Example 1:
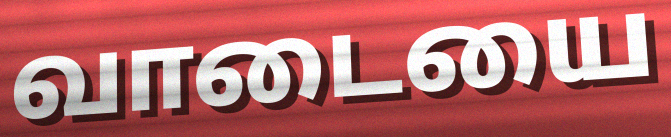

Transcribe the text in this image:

வாடையை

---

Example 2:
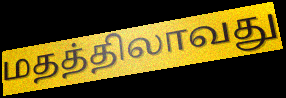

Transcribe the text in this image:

மதத்திலாவது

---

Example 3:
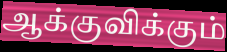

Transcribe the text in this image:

ஆக்குவிக்கும்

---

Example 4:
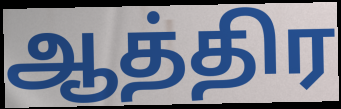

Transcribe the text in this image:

ஆத்திர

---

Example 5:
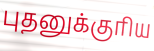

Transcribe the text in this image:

புதனுக்குரிய